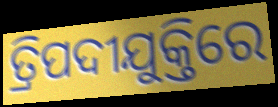
ତ୍ରିପଦୀଯୁକ୍ତିରେ